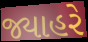
જ્યાહરે